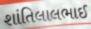
શાંતિલાલભાઈ